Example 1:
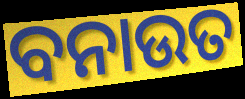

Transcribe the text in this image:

ବନାଉତ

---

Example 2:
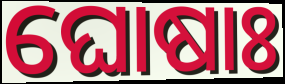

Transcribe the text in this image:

ଘୋଷାଃ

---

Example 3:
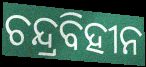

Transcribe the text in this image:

ଚନ୍ଦ୍ରବିହୀନ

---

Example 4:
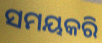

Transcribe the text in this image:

ସମୟକରି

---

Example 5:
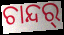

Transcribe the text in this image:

ଚାନ୍ଦର୍